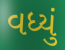
વધ્યું